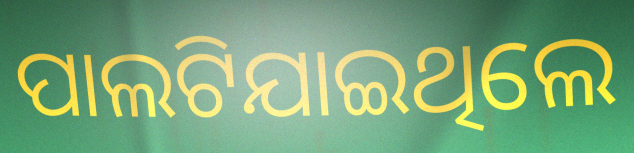
ପାଲଟିଯାଇଥିଲେ